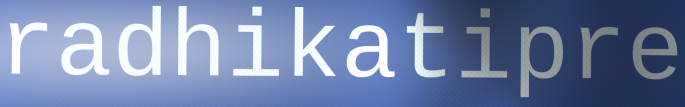
radhikatipre